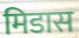
मिडास